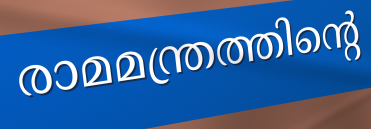
രാമമന്ത്രത്തിന്റെ